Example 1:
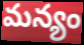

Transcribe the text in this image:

మన్యం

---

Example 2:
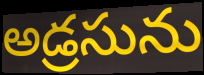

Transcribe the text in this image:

అడ్రసును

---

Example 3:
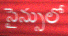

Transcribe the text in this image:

సైన్సులో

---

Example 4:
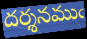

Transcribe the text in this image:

దర్శనముఁ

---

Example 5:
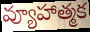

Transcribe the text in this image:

వ్యూహాత్మక